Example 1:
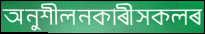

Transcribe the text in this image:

অনুশীলনকাৰীসকলৰ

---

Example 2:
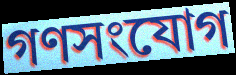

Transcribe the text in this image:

গণসংযোগ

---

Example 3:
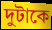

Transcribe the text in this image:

দুটাকে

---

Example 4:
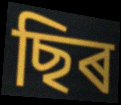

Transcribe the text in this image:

ছিৰ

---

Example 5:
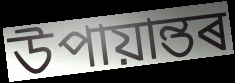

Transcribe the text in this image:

উপায়ান্তৰ